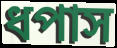
ধপাস